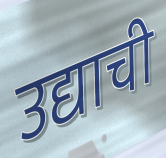
उद्याची